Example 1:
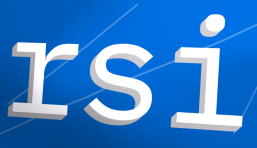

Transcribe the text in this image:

rsi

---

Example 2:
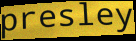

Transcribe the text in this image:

presley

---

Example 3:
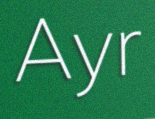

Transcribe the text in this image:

Ayr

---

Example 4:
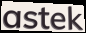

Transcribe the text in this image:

astek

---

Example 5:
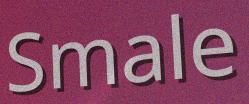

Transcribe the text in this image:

Smale